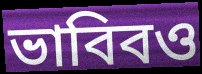
ভাবিবও